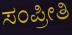
ಸಂಪ್ರೀತಿ